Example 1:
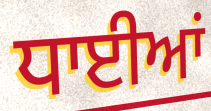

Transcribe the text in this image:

ਧਾਈਆਂ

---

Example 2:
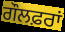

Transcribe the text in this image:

ਗੌਲਫ਼ਰਾਂ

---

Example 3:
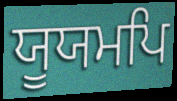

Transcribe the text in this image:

ਯੂਯਮਪਿ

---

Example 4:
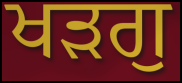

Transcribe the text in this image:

ਖੜਗੁ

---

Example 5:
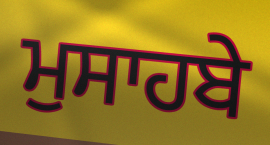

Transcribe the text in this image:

ਮੁਸਾਹਬੇ